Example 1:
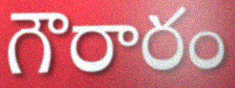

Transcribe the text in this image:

గౌరారం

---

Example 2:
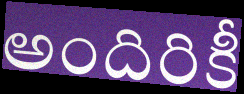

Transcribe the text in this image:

అందిరికీ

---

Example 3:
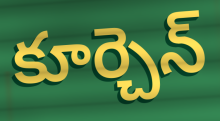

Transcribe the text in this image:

కూర్చెన్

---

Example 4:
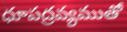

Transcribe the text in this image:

ధూపద్రవ్యముతో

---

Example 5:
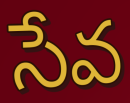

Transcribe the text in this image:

సేవ